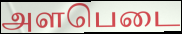
அளபெடை